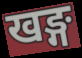
खङ्ग